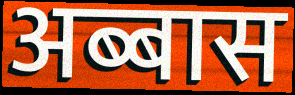
अब्बास